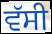
ਵੱਸੀ